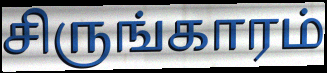
சிருங்காரம்